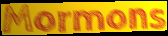
Mormons